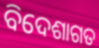
ବିଦେଶାଗତ